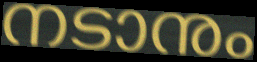
നടാനും